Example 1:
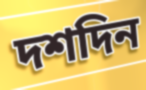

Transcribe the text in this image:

দশদিন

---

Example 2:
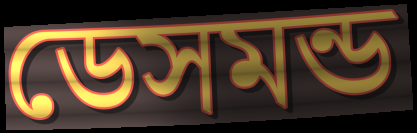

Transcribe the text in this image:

ডেসমন্ড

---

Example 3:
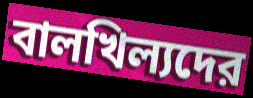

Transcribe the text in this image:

বালখিল্যদের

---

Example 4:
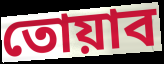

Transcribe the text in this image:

তোয়াব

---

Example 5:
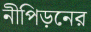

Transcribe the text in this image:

নীপিড়নের